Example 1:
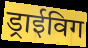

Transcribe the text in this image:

ड्राईविग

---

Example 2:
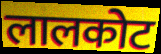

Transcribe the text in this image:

लालकोट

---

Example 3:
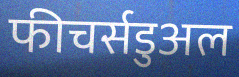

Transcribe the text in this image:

फीचर्सडुअल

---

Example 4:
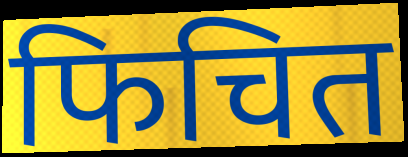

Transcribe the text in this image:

फिचित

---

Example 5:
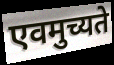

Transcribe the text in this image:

एवमुच्यते